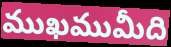
ముఖముమీది